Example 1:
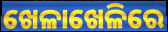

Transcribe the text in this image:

ଖେଳାଖେଳିରେ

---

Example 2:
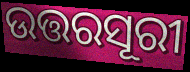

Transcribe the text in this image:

ଉତ୍ତରସୂରୀ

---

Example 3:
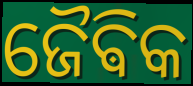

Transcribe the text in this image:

ଜୈଵିକ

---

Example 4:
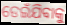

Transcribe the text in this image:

ଡେଇଁଯିବାକୁ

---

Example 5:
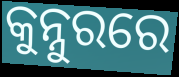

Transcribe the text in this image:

କୁନ୍ନୁରରେ